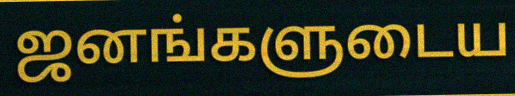
ஜனங்களுடைய